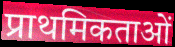
प्राथमिकताओं